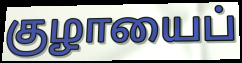
குழாயைப்